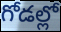
గోడల్లో